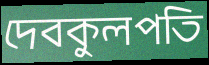
দেবকুলপতি